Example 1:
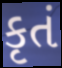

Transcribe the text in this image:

કૃતં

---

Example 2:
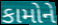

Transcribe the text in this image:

કામોને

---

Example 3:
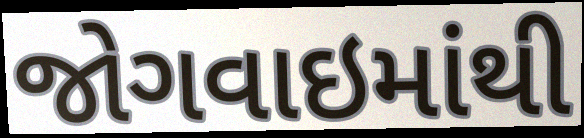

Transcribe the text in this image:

જોગવાઇમાંથી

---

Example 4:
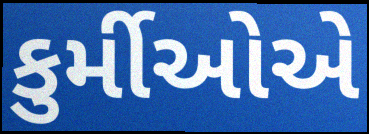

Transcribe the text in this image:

કુર્મીઓએ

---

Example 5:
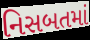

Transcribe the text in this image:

નિસબતમાં